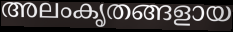
അലംകൃതങ്ങളായ